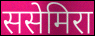
ससेमिरा